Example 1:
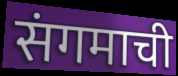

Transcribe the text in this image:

संगमाची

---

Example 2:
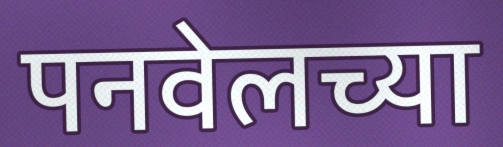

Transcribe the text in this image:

पनवेलच्या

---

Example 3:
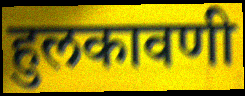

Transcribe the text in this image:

हुलकावणी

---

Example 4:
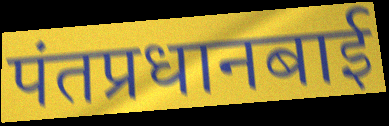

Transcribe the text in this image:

पंतप्रधानबाई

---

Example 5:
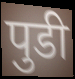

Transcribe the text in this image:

पुडी